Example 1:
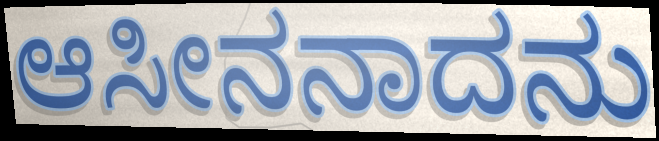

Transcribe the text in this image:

ಆಸೀನನಾದನು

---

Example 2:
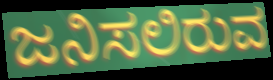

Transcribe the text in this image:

ಜನಿಸಲಿರುವ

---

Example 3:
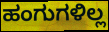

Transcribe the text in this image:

ಹಂಗುಗಳಿಲ್ಲ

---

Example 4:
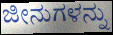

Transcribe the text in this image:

ಜೀನುಗಳನ್ನು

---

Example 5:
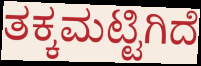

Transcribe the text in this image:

ತಕ್ಕಮಟ್ಟಿಗಿದೆ